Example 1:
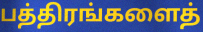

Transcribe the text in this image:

பத்திரங்களைத்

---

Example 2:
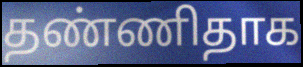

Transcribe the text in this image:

தண்ணிதாக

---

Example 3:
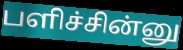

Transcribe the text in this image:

பளிச்சின்னு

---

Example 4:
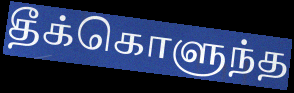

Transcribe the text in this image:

தீக்கொளுந்த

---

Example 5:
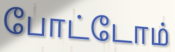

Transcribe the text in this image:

போட்டோம்